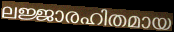
ലജ്ജാരഹിതമായ